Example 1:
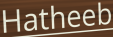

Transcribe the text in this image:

Hatheeb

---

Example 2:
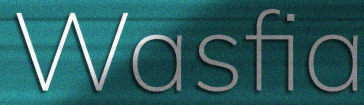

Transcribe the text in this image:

Wasfia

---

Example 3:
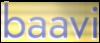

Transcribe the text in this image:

baavi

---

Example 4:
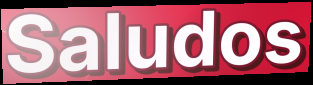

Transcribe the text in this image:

Saludos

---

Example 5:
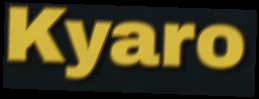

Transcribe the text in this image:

Kyaro